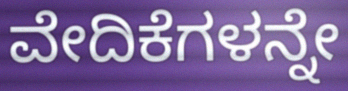
ವೇದಿಕೆಗಳನ್ನೇ